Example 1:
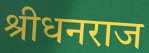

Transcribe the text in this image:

श्रीधनराज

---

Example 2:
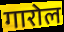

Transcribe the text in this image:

गारोल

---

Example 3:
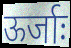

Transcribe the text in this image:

ऊर्जाः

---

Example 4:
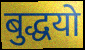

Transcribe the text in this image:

बुद्धयो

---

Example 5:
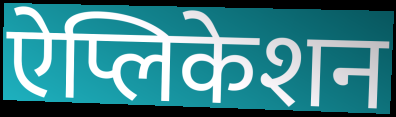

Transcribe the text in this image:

ऐप्लिकेशन